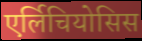
एर्लिचियोसिस